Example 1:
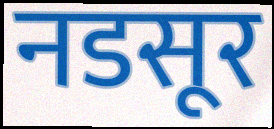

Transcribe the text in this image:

नडसूर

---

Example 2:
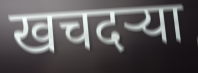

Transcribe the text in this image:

खचदऱ्या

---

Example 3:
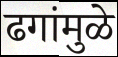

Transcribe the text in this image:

ढगांमुळे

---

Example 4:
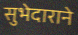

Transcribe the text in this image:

सुभेदाराने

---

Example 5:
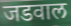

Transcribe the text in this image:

जडवाल